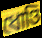
ধোণ্ডি